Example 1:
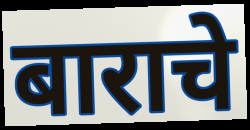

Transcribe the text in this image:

बाराचे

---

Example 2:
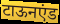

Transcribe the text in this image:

टाऊनएंड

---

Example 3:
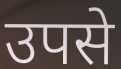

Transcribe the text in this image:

उपसे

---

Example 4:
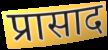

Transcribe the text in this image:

प्रासाद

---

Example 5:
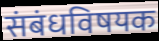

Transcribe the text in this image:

संबंधविषयक